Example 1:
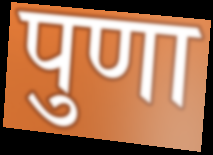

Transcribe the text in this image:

पुणा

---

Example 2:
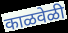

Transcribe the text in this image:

काळवेळी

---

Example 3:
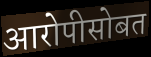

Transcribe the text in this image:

आरोपीसोबत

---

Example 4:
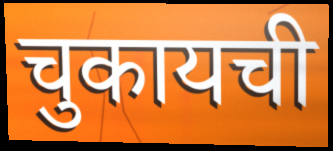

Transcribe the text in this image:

चुकायची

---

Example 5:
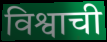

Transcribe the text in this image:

विश्वाची